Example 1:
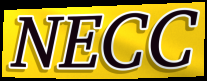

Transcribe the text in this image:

NECC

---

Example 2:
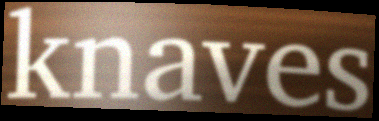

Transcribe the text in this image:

knaves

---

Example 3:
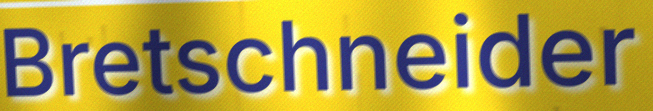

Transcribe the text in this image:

Bretschneider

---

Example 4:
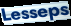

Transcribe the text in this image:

Lesseps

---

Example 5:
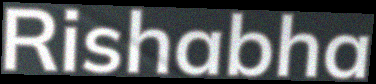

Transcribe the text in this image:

Rishabha